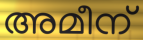
അമീന്